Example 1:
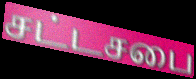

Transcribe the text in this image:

சட்டசபை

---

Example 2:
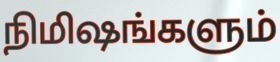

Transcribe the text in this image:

நிமிஷங்களும்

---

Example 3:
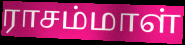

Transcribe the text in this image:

ராசம்மாள்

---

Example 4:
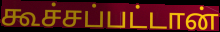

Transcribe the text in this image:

கூச்சப்பட்டான்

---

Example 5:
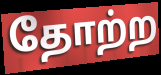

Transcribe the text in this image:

தோற்ற